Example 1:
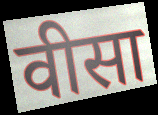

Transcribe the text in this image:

वीसा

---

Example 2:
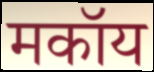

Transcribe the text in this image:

मकॉय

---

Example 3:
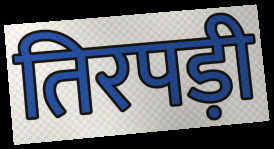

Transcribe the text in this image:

तिरपड़ी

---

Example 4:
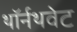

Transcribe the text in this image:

थॉर्नथवेट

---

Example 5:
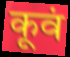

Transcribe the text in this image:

कूवं